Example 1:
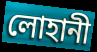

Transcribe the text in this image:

লোহানী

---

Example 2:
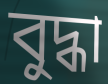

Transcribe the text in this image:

বুদ্ধা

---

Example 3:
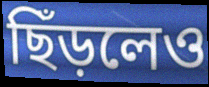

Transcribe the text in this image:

ছিঁড়লেও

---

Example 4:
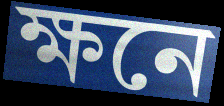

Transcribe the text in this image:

ক্ষনে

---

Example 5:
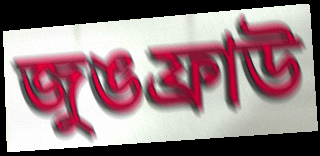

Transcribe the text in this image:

জুঙফ্রাউ